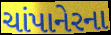
ચાંપાનેરના